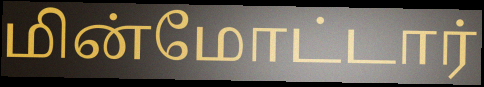
மின்மோட்டார்